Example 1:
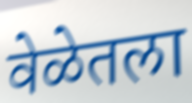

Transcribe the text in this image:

वेळेतला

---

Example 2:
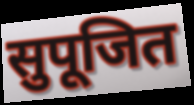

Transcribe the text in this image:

सुपूजित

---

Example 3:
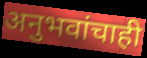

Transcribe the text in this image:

अनुभवांचाही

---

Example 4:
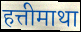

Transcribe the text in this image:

हत्तीमाथा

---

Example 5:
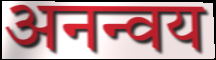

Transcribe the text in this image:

अनन्वय